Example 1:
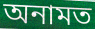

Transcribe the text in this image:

অনামত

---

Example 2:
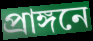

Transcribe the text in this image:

প্রাঙ্গনে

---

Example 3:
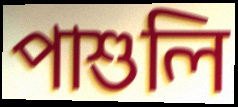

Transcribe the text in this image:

পাশুলি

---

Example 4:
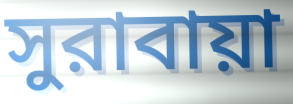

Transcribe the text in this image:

সুরাবায়া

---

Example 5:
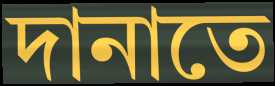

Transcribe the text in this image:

দানাতে